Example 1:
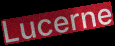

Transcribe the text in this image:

Lucerne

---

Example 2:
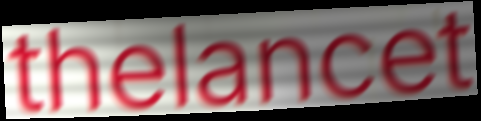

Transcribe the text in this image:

thelancet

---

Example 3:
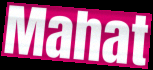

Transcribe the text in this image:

Mahat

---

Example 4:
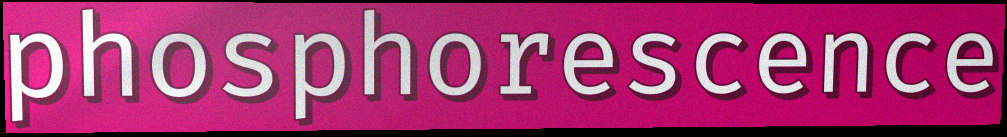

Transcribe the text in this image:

phosphorescence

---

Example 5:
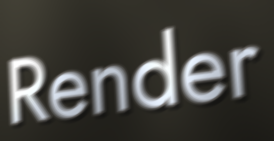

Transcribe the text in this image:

Render